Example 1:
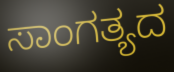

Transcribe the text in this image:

ಸಾಂಗತ್ಯದ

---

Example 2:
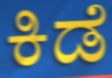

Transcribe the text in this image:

ಕಿಡೆ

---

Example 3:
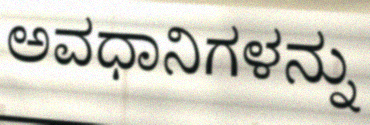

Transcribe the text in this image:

ಅವಧಾನಿಗಳನ್ನು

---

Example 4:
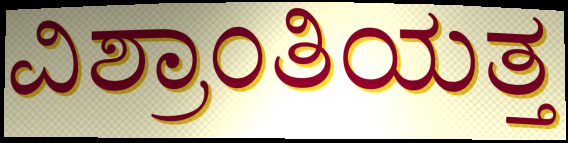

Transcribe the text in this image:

ವಿಶ್ರಾಂತಿಯತ್ತ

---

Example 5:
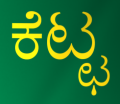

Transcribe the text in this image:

ಕೆಟ್ಟ